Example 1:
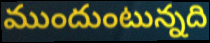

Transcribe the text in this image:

ముందుంటున్నది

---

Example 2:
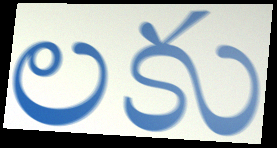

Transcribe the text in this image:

లకు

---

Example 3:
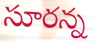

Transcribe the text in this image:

సూరన్న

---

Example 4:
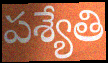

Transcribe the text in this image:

పశ్యేతి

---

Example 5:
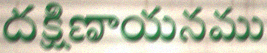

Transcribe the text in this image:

దక్షిణాయనము